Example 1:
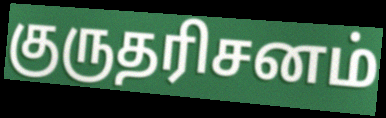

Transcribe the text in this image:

குருதரிசனம்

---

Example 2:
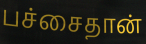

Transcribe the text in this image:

பச்சைதான்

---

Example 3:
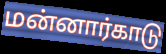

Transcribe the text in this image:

மன்னார்காடு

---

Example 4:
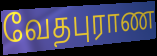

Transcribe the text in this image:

வேதபுராண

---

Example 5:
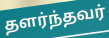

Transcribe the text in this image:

தளர்ந்தவர்